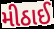
મીઠાઈ